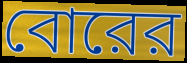
বোরের